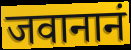
जवानानं